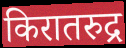
किरातरुद्र